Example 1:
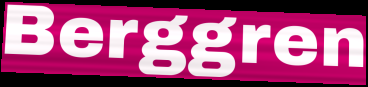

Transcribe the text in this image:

Berggren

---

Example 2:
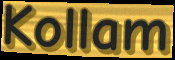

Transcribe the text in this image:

Kollam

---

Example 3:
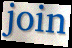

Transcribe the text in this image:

join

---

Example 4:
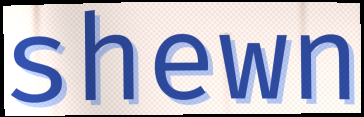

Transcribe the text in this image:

shewn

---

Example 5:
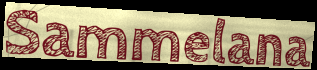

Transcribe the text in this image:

Sammelana